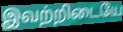
இவற்றிடையே